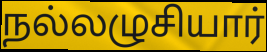
நல்லழுசியார்